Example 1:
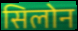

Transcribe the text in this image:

सिलोन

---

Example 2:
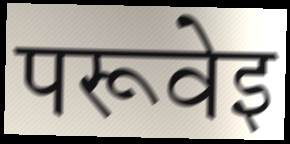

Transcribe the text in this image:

परूवेइ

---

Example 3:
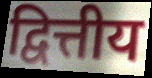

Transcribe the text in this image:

द्वित्तीय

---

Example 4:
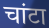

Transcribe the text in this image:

चांटा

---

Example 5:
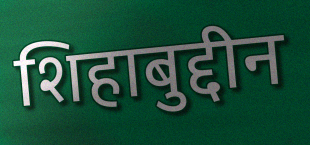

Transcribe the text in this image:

शिहाबुद्दीन